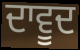
ਦਾਵੂਦ